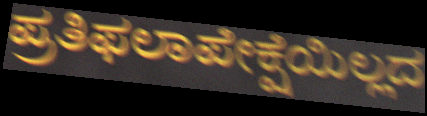
ಪ್ರತಿಫಲಾಪೇಕ್ಷೆಯಿಲ್ಲದ